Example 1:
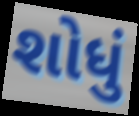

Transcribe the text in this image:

શોધું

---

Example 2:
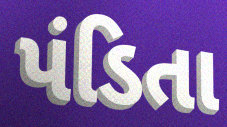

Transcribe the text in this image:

પંડિતા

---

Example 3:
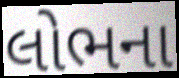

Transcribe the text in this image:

લોભના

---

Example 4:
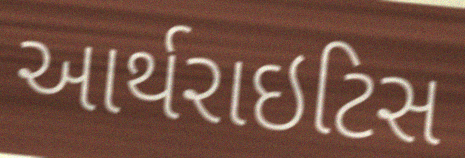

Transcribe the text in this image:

આર્થરાઇટિસ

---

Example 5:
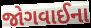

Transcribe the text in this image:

જોગવાઈના